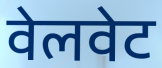
वेलवेट